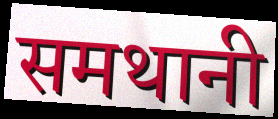
समथानी